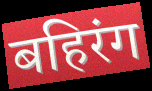
बहिरंग